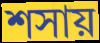
শসায়